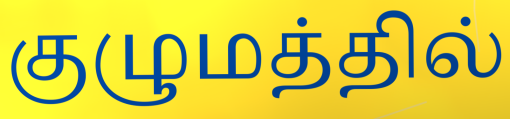
குழுமத்தில்